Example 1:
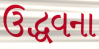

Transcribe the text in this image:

ઉદ્ધવના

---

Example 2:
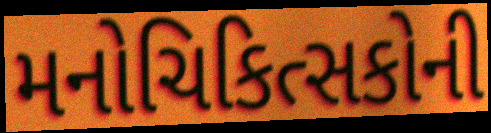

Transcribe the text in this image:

મનોચિકિત્સકોની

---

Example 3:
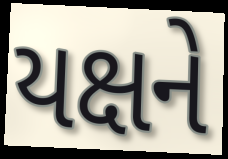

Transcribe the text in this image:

યક્ષને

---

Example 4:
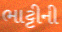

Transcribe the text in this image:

ભાટ્ટીની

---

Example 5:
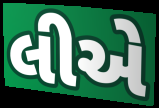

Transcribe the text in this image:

લીએ